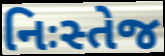
નિઃસ્તેજ